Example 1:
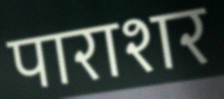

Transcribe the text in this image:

पाराशर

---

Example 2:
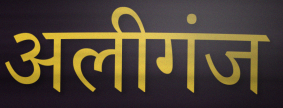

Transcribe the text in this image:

अलीगंज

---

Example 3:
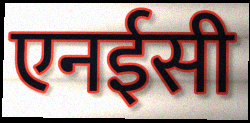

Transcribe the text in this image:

एनईसी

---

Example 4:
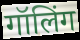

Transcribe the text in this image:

गॉलिंग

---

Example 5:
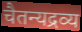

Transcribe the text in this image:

चैतन्यद्रव्य